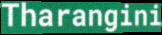
Tharangini